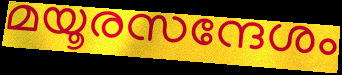
മയൂരസന്ദേശം